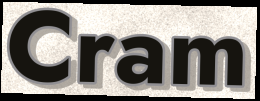
Cram